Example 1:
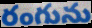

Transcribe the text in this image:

రంగును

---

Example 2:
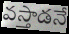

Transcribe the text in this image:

వస్తాడనే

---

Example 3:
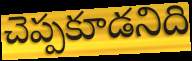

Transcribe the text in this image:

చెప్పకూడనిది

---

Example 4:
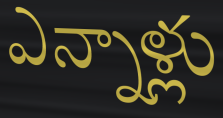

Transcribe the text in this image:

ఎన్నాళ్లు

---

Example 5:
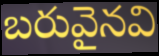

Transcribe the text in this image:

బరువైనవి